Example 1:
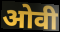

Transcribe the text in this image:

ओवी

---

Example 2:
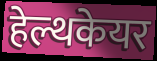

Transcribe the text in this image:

हेल्थकेयर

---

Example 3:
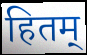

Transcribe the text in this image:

हितम्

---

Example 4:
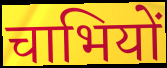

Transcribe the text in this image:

चाभियों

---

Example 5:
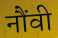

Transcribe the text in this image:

नौंवी